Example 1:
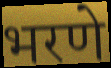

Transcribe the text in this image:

भरणे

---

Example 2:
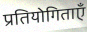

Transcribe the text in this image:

प्रतियोगिताएँ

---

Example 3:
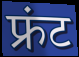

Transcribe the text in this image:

फ्रंट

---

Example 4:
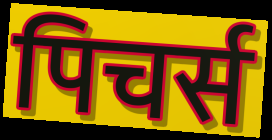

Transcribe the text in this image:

पिचर्स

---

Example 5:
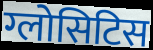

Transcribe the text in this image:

ग्लोसिटिस